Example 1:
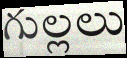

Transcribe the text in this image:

గుల్లలు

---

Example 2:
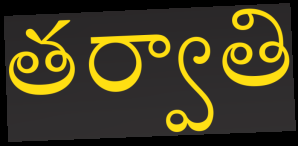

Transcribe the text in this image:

తర్వాతి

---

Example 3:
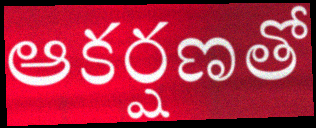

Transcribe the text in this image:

ఆకర్షణతో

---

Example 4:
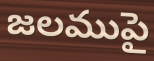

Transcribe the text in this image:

జలముపై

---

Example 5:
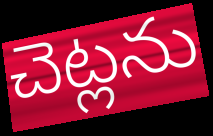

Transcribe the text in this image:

చెట్లను